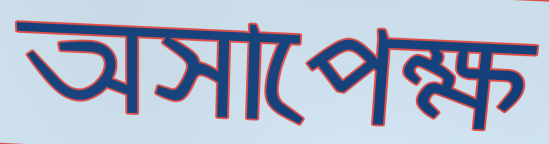
অসাপেক্ষ